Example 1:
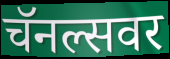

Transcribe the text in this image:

चॅनल्सवर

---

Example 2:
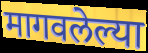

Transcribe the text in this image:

मागवलेल्या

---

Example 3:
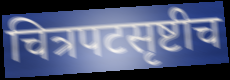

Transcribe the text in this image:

चित्रपटसृष्टीच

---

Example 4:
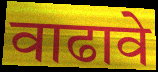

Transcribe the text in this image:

वाढावे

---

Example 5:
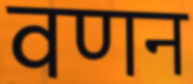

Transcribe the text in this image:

वणन